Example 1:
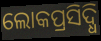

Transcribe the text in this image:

ଲୋକପ୍ରସିଦ୍ଧି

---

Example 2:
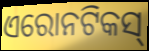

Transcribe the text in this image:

ଏରୋନଟିକସ୍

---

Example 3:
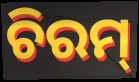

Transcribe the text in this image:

ଚିରମ୍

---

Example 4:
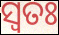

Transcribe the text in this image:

ସ୍ଵତଃ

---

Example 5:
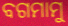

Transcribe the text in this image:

ବଗମାମୁ